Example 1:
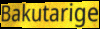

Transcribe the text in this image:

Bakutarige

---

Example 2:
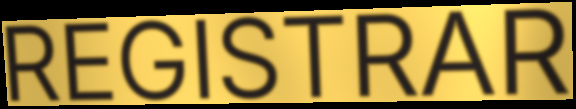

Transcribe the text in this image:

REGISTRAR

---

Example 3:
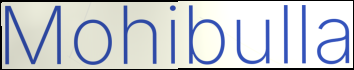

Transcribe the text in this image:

Mohibulla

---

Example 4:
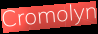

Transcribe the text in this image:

Cromolyn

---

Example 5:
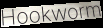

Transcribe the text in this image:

Hookworm